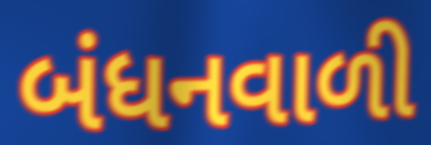
બંધનવાળી